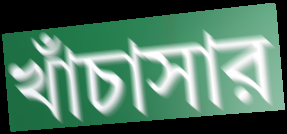
খাঁচাসার